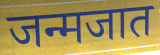
जन्मजात